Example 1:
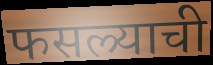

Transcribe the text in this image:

फसल्याची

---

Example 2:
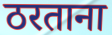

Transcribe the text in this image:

ठरताना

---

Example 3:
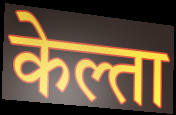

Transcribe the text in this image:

केल्ता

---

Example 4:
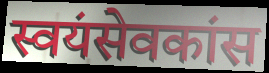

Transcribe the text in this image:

स्वयंसेवकांस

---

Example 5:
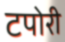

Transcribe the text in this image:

टपोरी